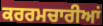
ਕਰਰਮਚਾਰੀਆਂ